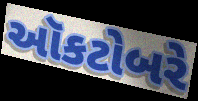
ઑકટોબરે